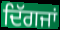
ਦਿੱਗਜਾਂ